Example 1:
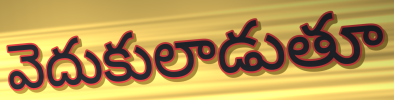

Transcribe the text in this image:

వెదుకులాడుతూ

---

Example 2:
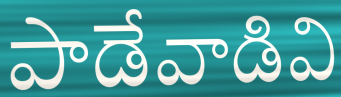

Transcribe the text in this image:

పాడేవాడివి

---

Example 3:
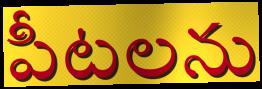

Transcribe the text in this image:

పీటలను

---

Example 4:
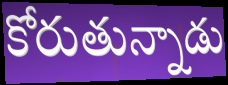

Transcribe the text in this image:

కోరుతున్నాడు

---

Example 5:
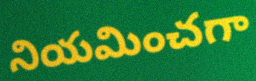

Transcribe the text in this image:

నియమించగా